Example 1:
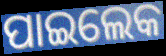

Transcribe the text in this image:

ପାଇଲେକ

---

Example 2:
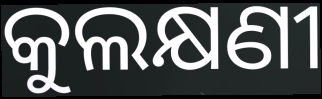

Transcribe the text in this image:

କୁଲକ୍ଷଣୀ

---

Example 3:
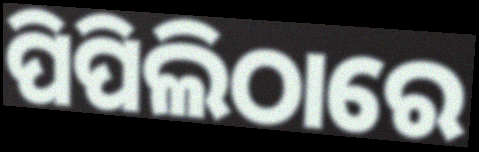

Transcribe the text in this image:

ପିପିଲିଠାରେ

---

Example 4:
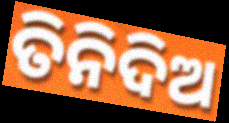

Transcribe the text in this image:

ତିନିଦିଅ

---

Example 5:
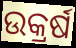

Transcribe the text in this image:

ଉକ୍ରର୍ଷ